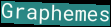
Graphemes